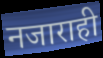
नजाराही